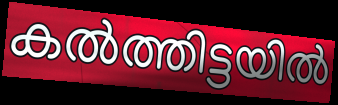
കൽത്തിട്ടയിൽ